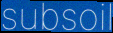
subsoil